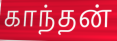
காந்தன்